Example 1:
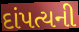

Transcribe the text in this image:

દાંપત્યની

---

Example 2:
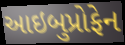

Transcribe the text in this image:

આઇબુપ્રોફેન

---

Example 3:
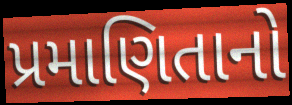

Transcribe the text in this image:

પ્રમાણિતાનો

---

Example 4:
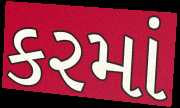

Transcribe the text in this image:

કરમાં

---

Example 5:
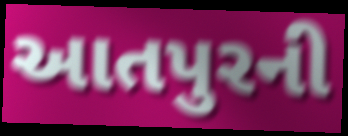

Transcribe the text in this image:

આતપુરની